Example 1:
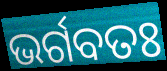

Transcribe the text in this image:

ଭର୍ଗବତଃ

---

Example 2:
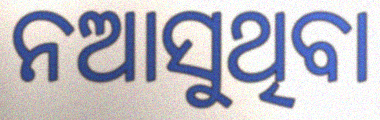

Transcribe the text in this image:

ନଆସୁଥିବା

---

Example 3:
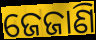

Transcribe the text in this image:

ଜେଜାଣି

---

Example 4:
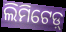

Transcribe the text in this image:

ଲିମିଟେଡ଼୍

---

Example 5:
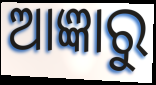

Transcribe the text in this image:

ଆଜ୍ଞାରୁ